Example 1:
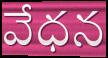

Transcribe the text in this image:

వేధన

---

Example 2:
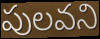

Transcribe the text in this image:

పులవని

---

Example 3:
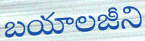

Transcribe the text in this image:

బయాలజీని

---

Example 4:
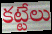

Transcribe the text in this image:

కట్టేలు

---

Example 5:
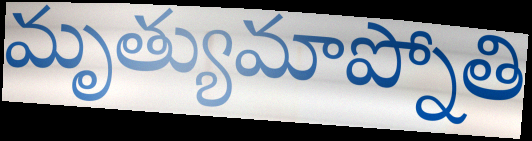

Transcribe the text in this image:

మృత్యుమాప్నోతి